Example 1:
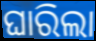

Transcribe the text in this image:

ଘାରିଲା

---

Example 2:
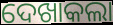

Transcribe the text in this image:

ଦେଖାକଲା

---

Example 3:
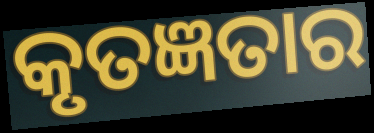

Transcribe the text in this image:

କୃତଜ୍ଞତାର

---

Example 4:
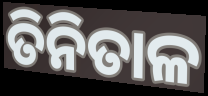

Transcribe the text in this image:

ତିନିତାଳ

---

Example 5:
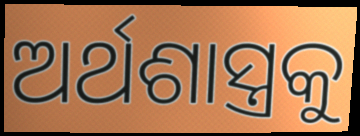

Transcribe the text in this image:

ଅର୍ଥଶାସ୍ତ୍ରକୁ